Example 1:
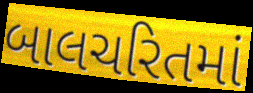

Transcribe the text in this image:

બાલચરિતમાં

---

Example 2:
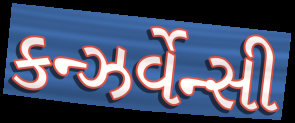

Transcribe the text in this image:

કન્ઝર્વેન્સી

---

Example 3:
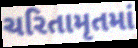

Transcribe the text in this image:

ચરિતામૃતમાં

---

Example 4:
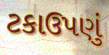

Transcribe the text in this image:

ટકાઉપણું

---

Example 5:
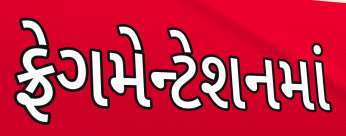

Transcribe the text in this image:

ફ્રેગમેન્ટેશનમાં